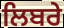
ਲਿਬਰੇ